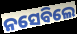
ନସେବିଲେ